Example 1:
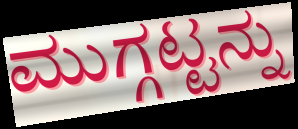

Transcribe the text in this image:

ಮುಗ್ಗಟ್ಟನ್ನು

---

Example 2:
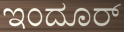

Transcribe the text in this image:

ಇಂದೂರ್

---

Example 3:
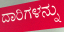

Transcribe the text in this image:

ದಾರಿಗಳನ್ನು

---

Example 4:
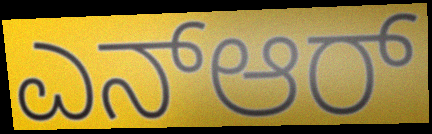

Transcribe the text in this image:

ಎನ್ಆರ್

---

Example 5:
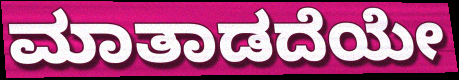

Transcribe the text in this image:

ಮಾತಾಡದೆಯೇ